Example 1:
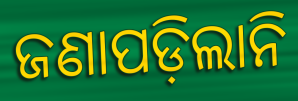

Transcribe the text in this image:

ଜଣାପଡ଼ିଲାନି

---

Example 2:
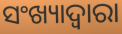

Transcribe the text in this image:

ସଂଖ୍ୟାଦ୍ଵାରା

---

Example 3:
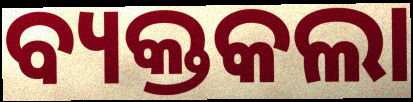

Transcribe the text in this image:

ବ୍ୟକ୍ତକଲା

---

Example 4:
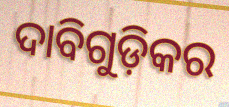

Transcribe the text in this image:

ଦାବିଗୁଡ଼ିକର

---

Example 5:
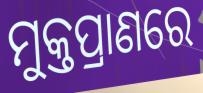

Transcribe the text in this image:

ମୁକ୍ତପ୍ରାଣରେ